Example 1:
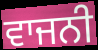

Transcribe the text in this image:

ਵਾਜਨੀ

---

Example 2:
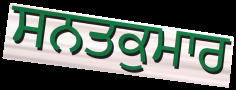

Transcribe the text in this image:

ਸਨਤਕੁਮਾਰ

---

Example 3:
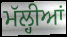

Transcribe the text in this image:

ਮੱਲ੍ਹੀਆਂ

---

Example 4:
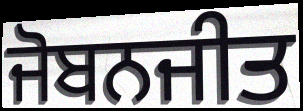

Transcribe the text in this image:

ਜੋਬਨਜੀਤ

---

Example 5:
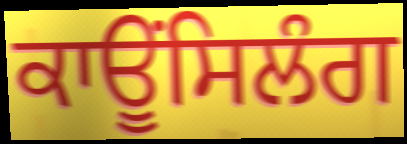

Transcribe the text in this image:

ਕਾਊਂਸਿਲੰਗ